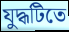
যুদ্ধটিতে